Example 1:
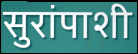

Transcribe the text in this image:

सुरांपाशी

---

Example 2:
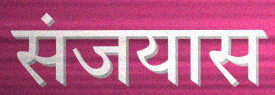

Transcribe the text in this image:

संजयास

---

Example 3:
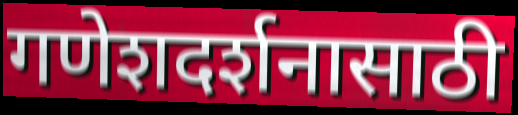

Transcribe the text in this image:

गणेशदर्शनासाठी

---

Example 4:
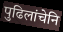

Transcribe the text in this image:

पुढिलांचेनि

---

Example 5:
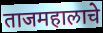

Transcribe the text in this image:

ताजमहालाचे